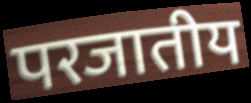
परजातीय